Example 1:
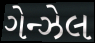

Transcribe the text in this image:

ગેન્ઝેલ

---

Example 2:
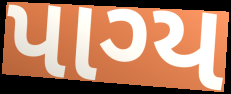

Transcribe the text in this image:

પાગ્ય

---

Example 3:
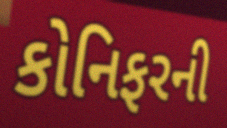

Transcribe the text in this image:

કોનિફરની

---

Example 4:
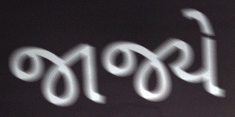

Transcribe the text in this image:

જાજ્યે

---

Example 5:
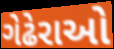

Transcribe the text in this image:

ગેઢેરાઓ